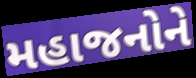
મહાજનોને